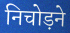
निचोड़ने